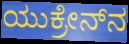
ಯುಕ್ರೇನ್‌ನ